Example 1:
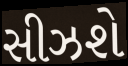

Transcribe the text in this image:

સીઝશે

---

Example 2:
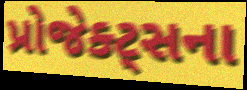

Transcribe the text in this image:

પ્રોજેક્ટ્સના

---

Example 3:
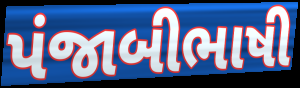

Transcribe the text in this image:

પંજાબીભાષી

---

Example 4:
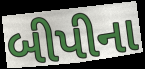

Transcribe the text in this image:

બીપીના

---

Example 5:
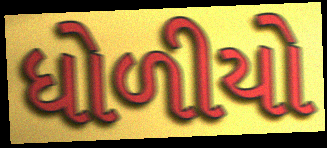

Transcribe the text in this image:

ધોળીયો